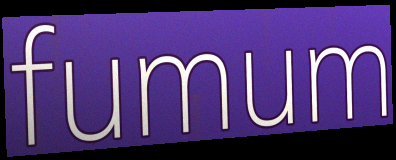
fumum